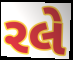
રલે